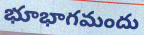
భూభాగమందు